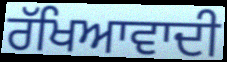
ਰੱਖਿਆਵਾਦੀ